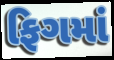
ફિગમાં